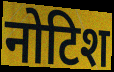
नोटिश